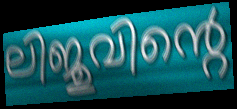
ലിജുവിന്റെ